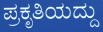
ಪ್ರಕೃತಿಯದ್ದು